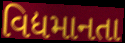
વિદ્યમાનતા